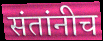
संतांनीच